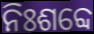
ନିଃଶବ୍ଦେ